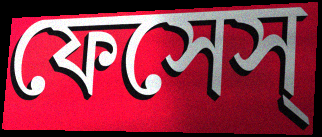
ফেসেস্